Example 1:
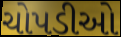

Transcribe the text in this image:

ચોપડીઓ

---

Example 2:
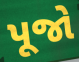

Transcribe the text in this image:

પૂજો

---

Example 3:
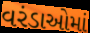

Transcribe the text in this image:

વરંડાઓમાં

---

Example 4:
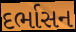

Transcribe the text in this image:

દર્ભાસન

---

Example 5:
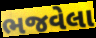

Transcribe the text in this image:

ભજવેલા